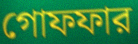
গোফফার